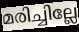
മരിച്ചില്ലേ